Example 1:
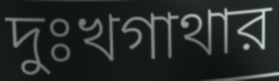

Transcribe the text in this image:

দুঃখগাথার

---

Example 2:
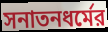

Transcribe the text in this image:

সনাতনধর্মের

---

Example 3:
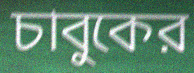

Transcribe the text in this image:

চাবুকের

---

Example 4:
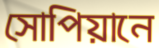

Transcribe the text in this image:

সোপিয়ানে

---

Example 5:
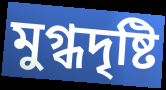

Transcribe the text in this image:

মুগ্ধদৃষ্টি